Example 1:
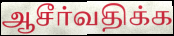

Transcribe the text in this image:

ஆசீர்வதிக்க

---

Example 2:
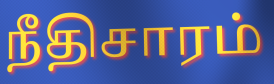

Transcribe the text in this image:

நீதிசாரம்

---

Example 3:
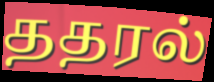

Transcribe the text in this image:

ததரல்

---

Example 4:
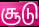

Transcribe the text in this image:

சூடு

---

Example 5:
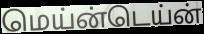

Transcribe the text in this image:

மெய்ன்டெய்ன்